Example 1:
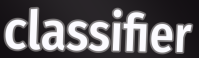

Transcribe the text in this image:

classifier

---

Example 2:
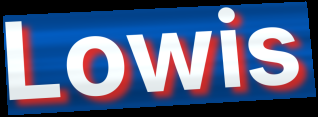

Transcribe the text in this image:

Lowis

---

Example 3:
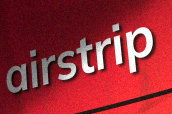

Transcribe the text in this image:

airstrip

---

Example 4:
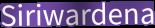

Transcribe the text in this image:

Siriwardena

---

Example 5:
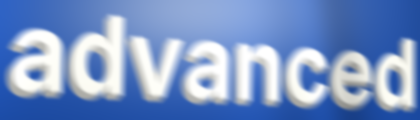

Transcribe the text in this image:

advanced